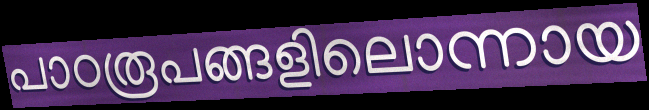
പാഠരൂപങ്ങളിലൊന്നായ